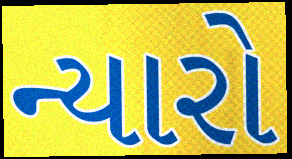
ન્યારો